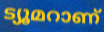
ട്യൂമറാണ്